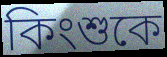
কিংশুকে